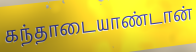
கந்தாடையாண்டான்